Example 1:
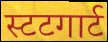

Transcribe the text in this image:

स्टटगार्ट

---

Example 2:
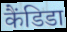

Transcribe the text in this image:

कैंडिडा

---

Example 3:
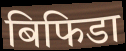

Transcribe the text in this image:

बिफिडा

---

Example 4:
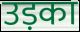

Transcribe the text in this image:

उड़का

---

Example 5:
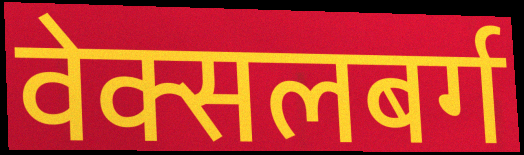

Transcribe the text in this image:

वेक्सलबर्ग